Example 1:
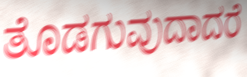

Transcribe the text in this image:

ತೊಡಗುವುದಾದರೆ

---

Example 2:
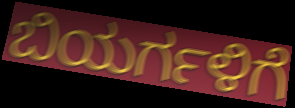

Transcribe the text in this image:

ಬಿಯರ್ಗಳಿಗೆ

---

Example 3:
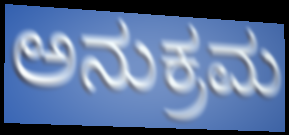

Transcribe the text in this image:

ಅನುಕ್ರಮ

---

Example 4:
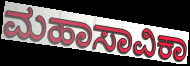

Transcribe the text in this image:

ಮಹಾಸಾವಿಕಾ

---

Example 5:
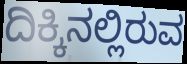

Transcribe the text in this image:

ದಿಕ್ಕಿನಲ್ಲಿರುವ